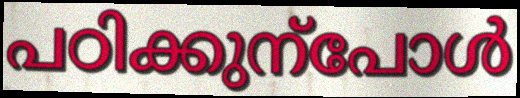
പഠിക്കുന്പോൾ